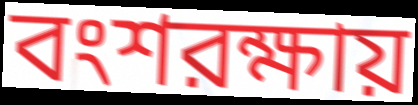
বংশরক্ষায়